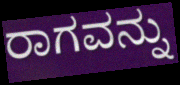
ರಾಗವನ್ನು